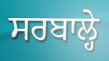
ਸਰਬਾਲ੍ਹੇ